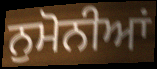
ਨੁਮੋਨੀਆਂ